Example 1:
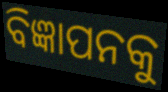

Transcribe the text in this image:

ବିଜ୍ଞାପନକୁ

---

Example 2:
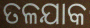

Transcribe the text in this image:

ତଳଯାକ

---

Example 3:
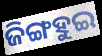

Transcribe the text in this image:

ଜିଙ୍ଗହୁଇ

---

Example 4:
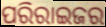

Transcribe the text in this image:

ପରିରାଇଜର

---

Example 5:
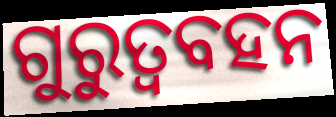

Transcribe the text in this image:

ଗୁରୁତ୍ୱବହନ